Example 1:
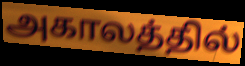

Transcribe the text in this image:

அகாலத்தில்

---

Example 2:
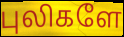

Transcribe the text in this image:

புலிகளே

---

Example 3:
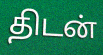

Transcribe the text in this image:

திடன்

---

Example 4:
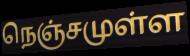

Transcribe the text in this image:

நெஞ்சமுள்ள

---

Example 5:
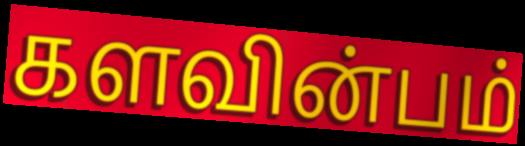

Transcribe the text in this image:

களவின்பம்